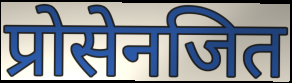
प्रोसेनजित